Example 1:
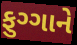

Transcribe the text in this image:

ફુગ્ગાને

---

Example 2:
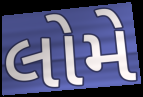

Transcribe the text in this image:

લોમે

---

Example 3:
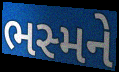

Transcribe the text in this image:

ભસ્મને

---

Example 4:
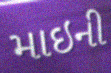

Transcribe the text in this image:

માઇની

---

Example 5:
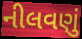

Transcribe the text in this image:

નીલવણું